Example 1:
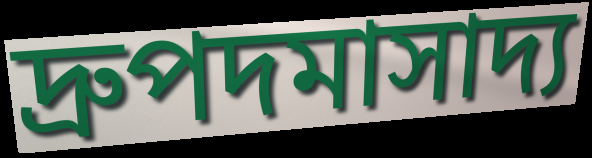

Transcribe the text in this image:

দ্রুপদমাসাদ্য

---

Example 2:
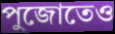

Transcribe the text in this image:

পুজোতেও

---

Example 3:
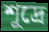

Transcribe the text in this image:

শূদ্রে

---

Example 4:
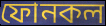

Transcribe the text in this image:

ফোনকল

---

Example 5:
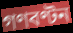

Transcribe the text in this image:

গণবণ্টন